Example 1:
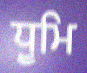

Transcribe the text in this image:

ਧੂਮਿ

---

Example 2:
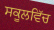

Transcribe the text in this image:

ਸਕੂਲਵਿੱਚ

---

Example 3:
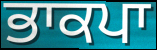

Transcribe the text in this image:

ਭਾਕਪਾ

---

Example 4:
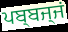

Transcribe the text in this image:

ਪਬ੍ਬਜ੍ਜਂ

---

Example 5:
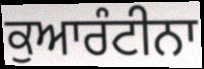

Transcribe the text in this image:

ਕੁਆਰੰਟੀਨਾ